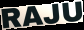
RAJU